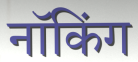
नॉकिंग